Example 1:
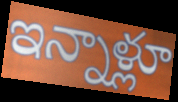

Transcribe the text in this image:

ఇన్నాళ్లూ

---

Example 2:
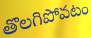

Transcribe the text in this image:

తొలగిపోవటం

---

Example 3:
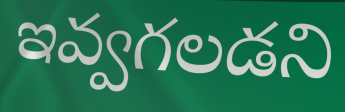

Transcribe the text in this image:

ఇవ్వగలడని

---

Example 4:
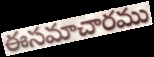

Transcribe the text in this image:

ఈసమాచారము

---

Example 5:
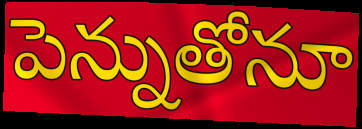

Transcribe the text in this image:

పెన్నుతోనూ